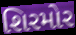
શિરમોર